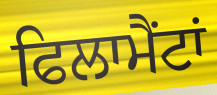
ਫਿਲਾਮੈਂਟਾਂ